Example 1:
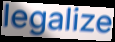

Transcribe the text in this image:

legalize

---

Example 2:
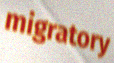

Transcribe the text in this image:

migratory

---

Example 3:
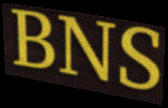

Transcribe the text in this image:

BNS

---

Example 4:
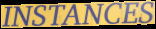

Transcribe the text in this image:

INSTANCES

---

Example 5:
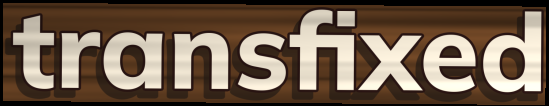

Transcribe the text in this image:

transfixed